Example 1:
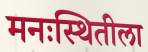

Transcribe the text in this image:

मनःस्थितीला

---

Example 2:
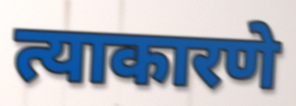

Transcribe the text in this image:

त्याकारणे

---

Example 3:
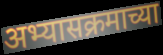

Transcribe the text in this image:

अभ्यासक्रमाच्या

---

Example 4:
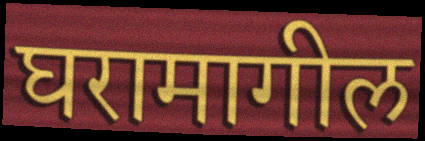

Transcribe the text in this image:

घरामागील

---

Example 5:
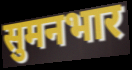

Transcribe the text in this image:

सुमनभार